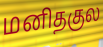
மனிதகுல